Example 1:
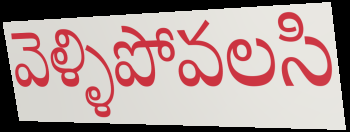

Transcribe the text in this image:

వెళ్ళిపోవలసి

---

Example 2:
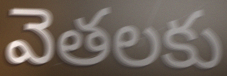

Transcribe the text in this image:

వెతలకు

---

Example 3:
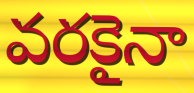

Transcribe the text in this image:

వరకైనా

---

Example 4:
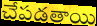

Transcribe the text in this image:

చేపడతాయి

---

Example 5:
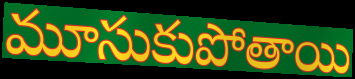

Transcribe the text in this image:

మూసుకుపోతాయి